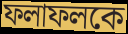
ফলাফলকে